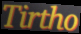
Tirtho